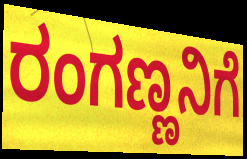
ರಂಗಣ್ಣನಿಗೆ